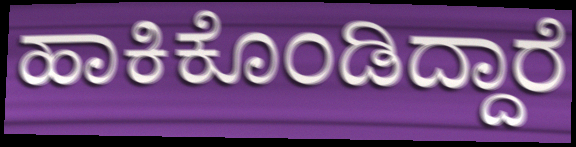
ಹಾಕಿಕೊಂಡಿದ್ದಾರೆ